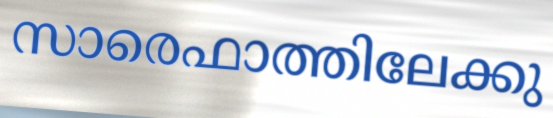
സാരെഫാത്തിലേക്കു